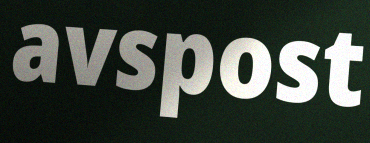
avspost